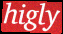
higly